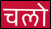
चलो